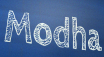
Modha